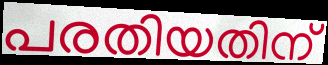
പരതിയതിന്